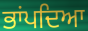
ਭਾਂਪਦਿਆ